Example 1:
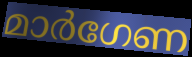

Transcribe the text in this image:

മാർഗേണ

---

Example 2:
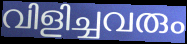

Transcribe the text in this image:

വിളിച്ചവരും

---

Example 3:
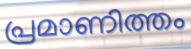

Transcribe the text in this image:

പ്രമാണിത്തം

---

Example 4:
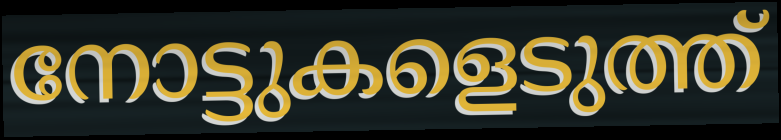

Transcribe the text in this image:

നോട്ടുകളെടുത്ത്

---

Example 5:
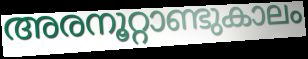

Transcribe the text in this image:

അരനൂറ്റാണ്ടുകാലം